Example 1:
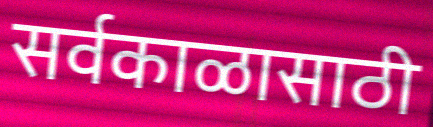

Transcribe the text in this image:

सर्वकाळासाठी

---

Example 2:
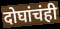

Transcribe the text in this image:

दोघांचंही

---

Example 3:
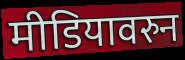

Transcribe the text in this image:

मीडियावरुन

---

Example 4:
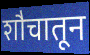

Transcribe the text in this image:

शौचातून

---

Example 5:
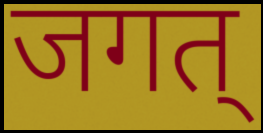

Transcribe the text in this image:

जगत्